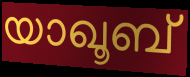
യാഖൂബ്